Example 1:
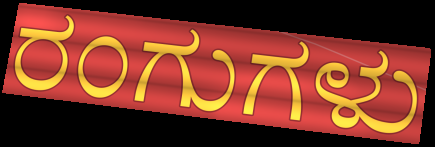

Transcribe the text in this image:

ರಂಗುಗಳು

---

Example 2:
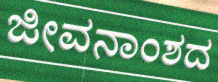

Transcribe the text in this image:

ಜೀವನಾಂಶದ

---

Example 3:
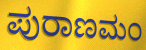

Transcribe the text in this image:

ಪುರಾಣಮಂ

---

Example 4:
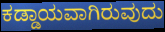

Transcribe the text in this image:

ಕಡ್ಡಾಯವಾಗಿರುವುದು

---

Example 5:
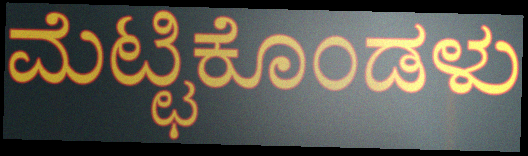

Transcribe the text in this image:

ಮೆಟ್ಟಿಕೊಂಡಳು